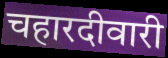
चहारदीवारी